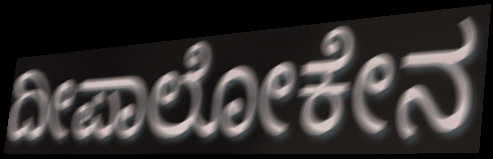
ದೀಪಾಲೋಕೇನ